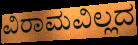
ವಿರಾಮವಿಲ್ಲದ